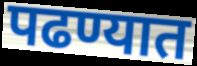
पढण्यात